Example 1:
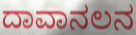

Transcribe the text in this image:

ದಾವಾನಲನ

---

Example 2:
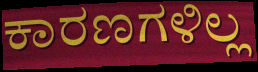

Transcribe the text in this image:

ಕಾರಣಗಳಿಲ್ಲ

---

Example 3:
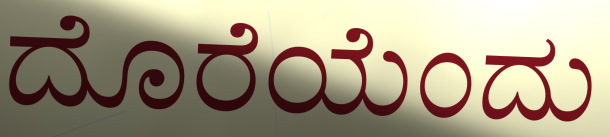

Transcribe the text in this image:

ದೊರೆಯೆಂದು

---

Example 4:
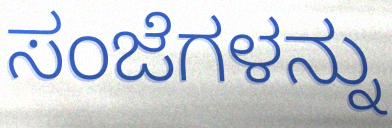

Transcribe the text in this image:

ಸಂಜೆಗಳನ್ನು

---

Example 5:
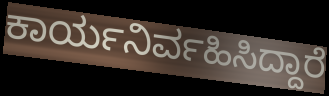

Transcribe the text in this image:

ಕಾರ್ಯನಿರ್ವಹಿಸಿದ್ದಾರೆ